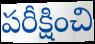
పరీక్షించి